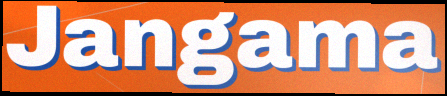
Jangama